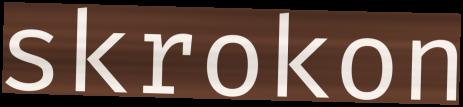
skrokon